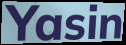
Yasin